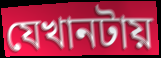
যেখানটায়